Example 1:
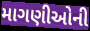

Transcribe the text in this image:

માગણીઓની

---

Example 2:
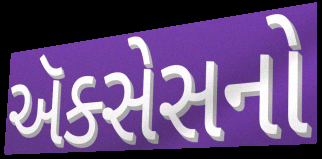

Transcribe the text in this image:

ઍક્સેસનો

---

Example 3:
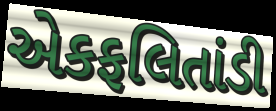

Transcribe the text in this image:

એકફલિતાંડી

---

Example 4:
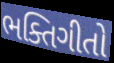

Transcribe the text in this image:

ભક્તિગીતો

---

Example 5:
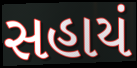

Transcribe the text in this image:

સહાયં